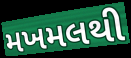
મખમલથી